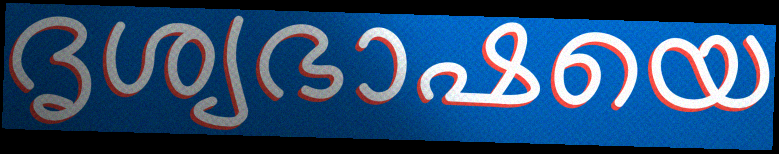
ദൃശ്യഭാഷയെ